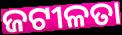
ଜଟୀଳତା